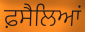
ਫ਼ਸੈਲਿਆਂ